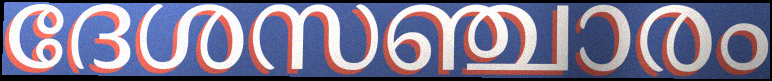
ദേശസഞ്ചാരം